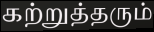
கற்றுத்தரும்